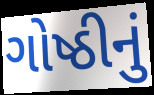
ગોષ્ઠીનું